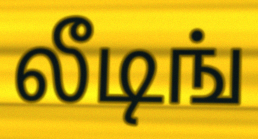
லீடிங்